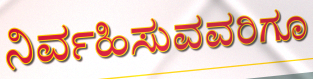
ನಿರ್ವಹಿಸುವವರಿಗೂ